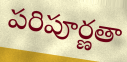
పరిపూర్ణతా